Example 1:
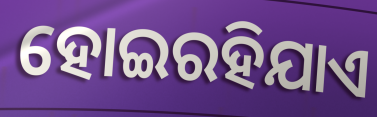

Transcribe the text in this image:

ହୋଇରହିଯାଏ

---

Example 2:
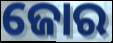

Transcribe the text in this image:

ଜୋର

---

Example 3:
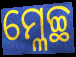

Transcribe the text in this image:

ମ୍ଳେଚ୍ଛ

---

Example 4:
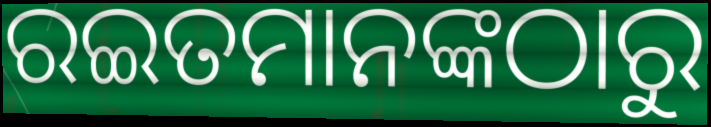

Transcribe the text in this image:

ରଇତମାନଙ୍କଠାରୁ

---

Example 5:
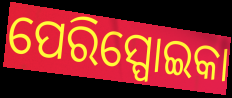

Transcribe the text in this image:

ପେରିସ୍ପୋଇକା